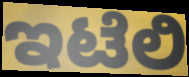
ಇಟೆಲಿ